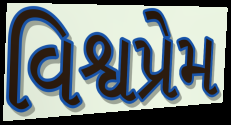
વિશ્વપ્રેમ